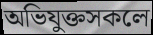
অভিযুক্তসকলে